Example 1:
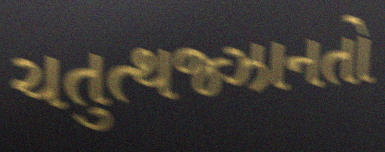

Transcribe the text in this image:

ચતુત્થજ્ઝાનતો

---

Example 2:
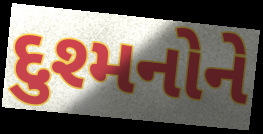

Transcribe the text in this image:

દુશ્મનોને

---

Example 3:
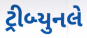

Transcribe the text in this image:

ટ્રીબ્યુનલે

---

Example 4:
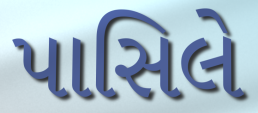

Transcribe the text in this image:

પાસિલે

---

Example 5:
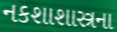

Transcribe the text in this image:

નકશાશાસ્ત્રના